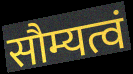
सौम्यत्वं